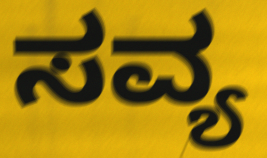
ಸವ್ಯ